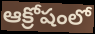
ఆక్రోషంలో